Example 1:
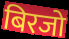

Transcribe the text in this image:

बिरजो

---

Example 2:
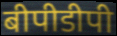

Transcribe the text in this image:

बीपीडीपी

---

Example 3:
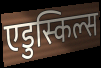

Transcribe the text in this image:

एडुस्किल्स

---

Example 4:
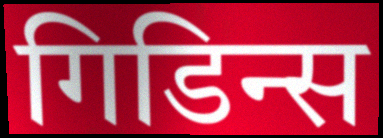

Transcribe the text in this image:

गिडिन्स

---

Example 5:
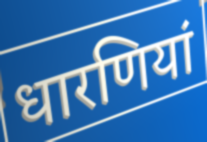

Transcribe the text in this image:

धारणियां